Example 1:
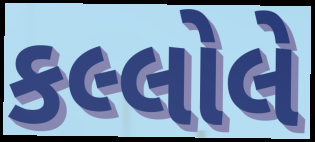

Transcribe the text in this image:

કલ્લોલે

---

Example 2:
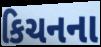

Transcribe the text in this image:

કિચનના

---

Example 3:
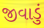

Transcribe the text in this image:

જીવાડું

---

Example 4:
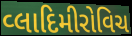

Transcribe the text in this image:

વ્લાદિમીરોવિચ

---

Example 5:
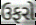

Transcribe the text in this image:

ઉફરો